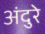
अंदुरे